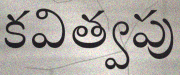
కవిత్వపు